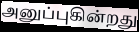
அனுப்புகின்றது